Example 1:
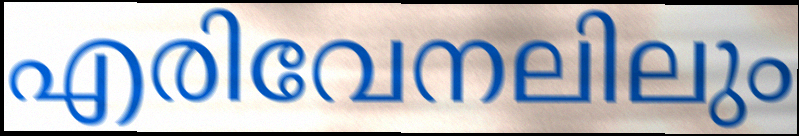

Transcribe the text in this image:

എരിവേനലിലും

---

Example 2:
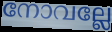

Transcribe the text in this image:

നോവല്ലേ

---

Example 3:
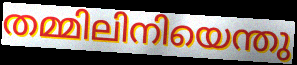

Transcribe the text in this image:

തമ്മിലിനിയെന്തു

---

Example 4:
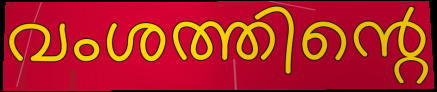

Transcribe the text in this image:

വംശത്തിന്റെ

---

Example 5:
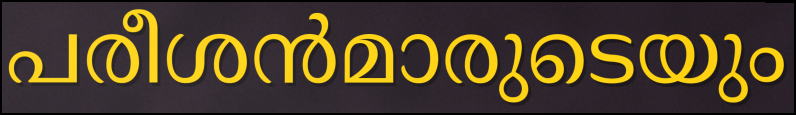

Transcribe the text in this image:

പരീശൻമാരുടെയും